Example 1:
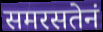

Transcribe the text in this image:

समरसतेनं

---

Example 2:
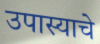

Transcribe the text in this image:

उपास्याचे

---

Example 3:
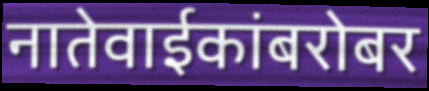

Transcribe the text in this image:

नातेवाईकांबरोबर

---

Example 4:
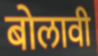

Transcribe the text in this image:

बोलावी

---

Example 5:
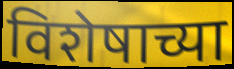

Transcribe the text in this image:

विशेषाच्या